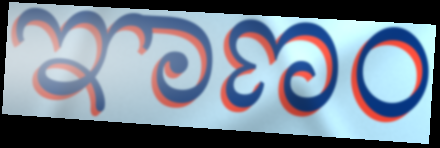
ಞಾಣಂ